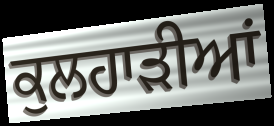
ਕੁਲਹਾੜੀਆਂ